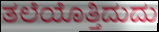
ತಲೆಯೊತ್ತಿದುದು